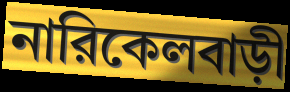
নারিকেলবাড়ী